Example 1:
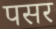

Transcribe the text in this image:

पसर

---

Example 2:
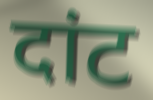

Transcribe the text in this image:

दांट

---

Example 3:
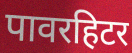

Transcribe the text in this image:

पावरहिटर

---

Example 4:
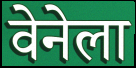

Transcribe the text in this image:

वेनेला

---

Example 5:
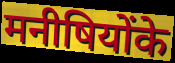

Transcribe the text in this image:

मनीषियोंके